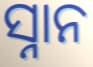
ସ୍ନାନ